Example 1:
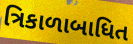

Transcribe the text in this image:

ત્રિકાળાબાધિત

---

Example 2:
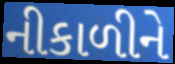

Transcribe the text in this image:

નીકાળીને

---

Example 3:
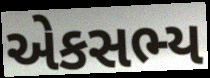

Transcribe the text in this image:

એકસભ્ય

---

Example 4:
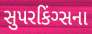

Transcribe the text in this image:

સુપરકિંગ્સના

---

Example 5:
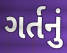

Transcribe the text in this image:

ગર્તનું